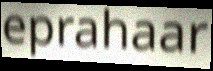
eprahaar